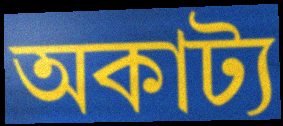
অকাট্য